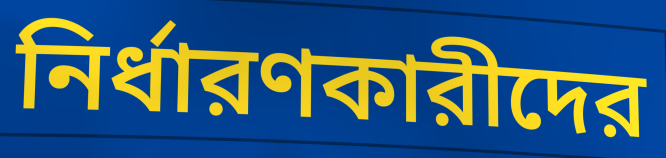
নির্ধারণকারীদের